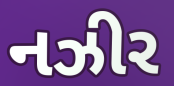
નઝીર